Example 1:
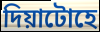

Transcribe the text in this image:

দিয়াটোহে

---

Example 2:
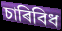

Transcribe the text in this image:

চাৰিবিধ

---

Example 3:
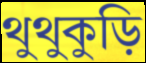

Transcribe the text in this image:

থুথুকুড়ি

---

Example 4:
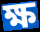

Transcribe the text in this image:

ক্ষ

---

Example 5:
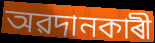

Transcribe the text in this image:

অৱদানকাৰী